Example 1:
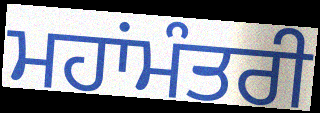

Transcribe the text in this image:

ਮਹਾਂਮੰਤਰੀ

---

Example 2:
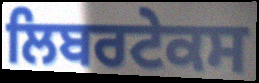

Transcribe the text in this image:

ਲਿਬਰਟੇਕਸ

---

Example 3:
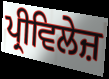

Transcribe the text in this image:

ਪ੍ਰੀਵਿਲੇਜ਼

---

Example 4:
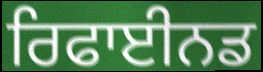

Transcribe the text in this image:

ਰਿਫਾਈਨਡ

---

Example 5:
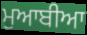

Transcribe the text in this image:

ਮੁਆਬੀਆ